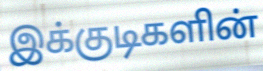
இக்குடிகளின்